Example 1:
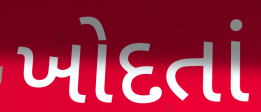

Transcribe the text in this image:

ખોદતાં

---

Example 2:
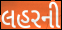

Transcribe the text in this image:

લહરની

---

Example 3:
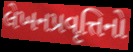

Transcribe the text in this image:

લેખનપ્રવૃત્તિનો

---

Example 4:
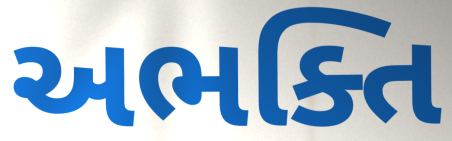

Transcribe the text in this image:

અભક્તિ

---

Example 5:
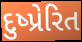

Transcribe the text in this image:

દુષ્પ્રેરિત